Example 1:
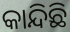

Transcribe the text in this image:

କାନ୍ଦିଛି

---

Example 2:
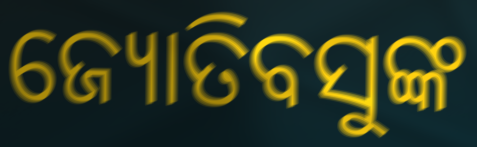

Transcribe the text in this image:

ଜ୍ୟୋତିବସୁଙ୍କ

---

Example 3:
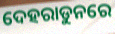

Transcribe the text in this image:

ଦେହରାଡୁନରେ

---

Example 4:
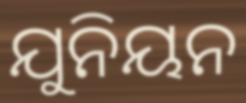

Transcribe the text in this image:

ଯୁନିୟନ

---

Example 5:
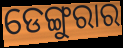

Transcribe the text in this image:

ଡେଙ୍ଗୁରାର